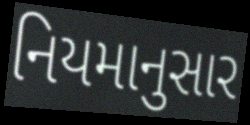
નિયમાનુસાર